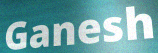
Ganesh